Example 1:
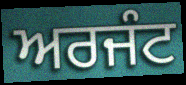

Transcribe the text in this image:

ਅਰਜੰਟ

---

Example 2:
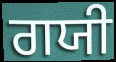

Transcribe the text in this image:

ਗਯੀ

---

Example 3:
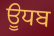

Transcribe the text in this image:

ਊਧਬ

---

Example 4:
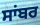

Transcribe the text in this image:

ਸਾਂਬਰ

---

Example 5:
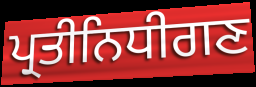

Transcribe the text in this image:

ਪ੍ਰਤੀਨਿਧੀਗਣ